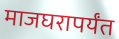
माजघरापर्यंत